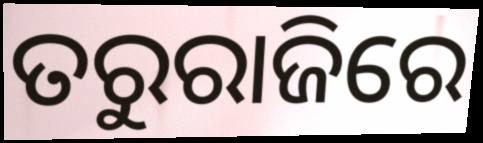
ତରୁରାଜିରେ